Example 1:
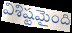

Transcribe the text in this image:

విశిష్టమైంది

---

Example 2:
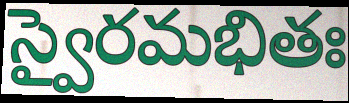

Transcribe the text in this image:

స్వైరమభితః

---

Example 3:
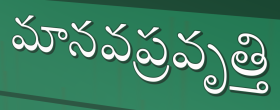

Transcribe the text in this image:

మానవప్రవృత్తి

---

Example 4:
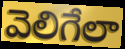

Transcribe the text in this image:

వెలిగేలా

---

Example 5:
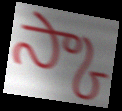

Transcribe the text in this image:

స్కా